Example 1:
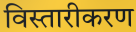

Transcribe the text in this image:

विस्तारीकरण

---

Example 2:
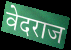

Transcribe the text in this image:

वेदराज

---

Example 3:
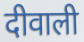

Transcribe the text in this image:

दीवाली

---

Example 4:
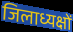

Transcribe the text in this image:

जिलाध्यक्षों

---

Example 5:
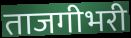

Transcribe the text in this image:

ताजगीभरी